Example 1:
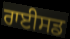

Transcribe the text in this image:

ਰਾਈਸਡ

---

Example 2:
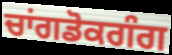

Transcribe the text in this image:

ਚਾਂਗਡੋਕਗੰਗ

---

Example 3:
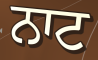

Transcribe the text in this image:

ਨਾਟ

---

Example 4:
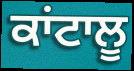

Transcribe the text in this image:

ਕਾਂਟਾਲੂ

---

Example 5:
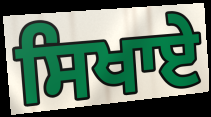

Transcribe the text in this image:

ਸਿਖਾਏੇ